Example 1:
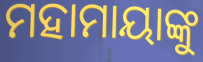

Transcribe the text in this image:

ମହାମାୟାଙ୍କୁ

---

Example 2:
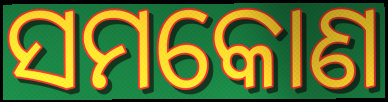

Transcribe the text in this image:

ସମକୋଣ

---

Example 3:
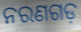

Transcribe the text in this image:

ନରଣଗଡ଼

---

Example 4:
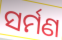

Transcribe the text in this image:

ସର୍ମଣ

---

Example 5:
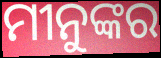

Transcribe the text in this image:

ମୀନୁଙ୍କର